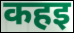
कहइ